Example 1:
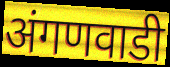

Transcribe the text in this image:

अंगणवाडी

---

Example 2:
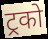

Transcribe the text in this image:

ट्रको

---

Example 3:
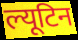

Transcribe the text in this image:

ल्यूटिन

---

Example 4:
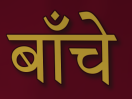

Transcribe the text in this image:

बाँचे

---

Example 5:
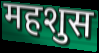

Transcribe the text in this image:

महशुस